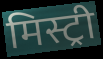
मिस्ट्री